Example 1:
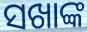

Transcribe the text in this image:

ସଖାଙ୍କ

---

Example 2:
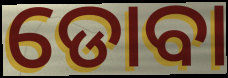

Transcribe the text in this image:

ଡୋବା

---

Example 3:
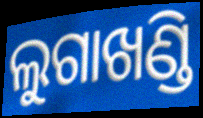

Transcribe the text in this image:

ଲୁଗାଖଣ୍ଡି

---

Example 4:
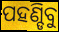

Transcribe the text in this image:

ପହଣ୍ଡିବୁ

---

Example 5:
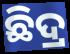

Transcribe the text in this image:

ଛିଦ୍ର